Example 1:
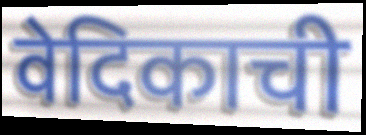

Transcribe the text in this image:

वेदिकाची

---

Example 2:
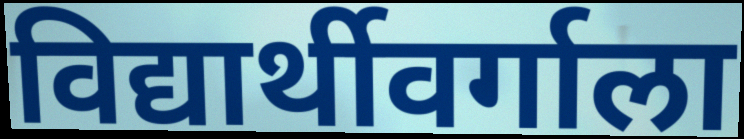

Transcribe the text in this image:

विद्यार्थीवर्गाला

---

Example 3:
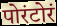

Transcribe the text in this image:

पोरंटोरं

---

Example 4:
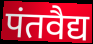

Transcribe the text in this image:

पंतवैद्य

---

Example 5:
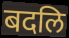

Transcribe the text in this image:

बदलि